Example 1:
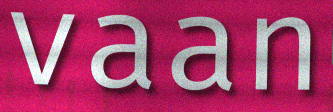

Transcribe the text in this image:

vaan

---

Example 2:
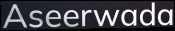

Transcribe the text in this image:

Aseerwada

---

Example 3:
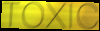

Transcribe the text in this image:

TOXIC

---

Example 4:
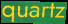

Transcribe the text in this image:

quartz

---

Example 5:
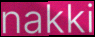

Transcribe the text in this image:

nakki